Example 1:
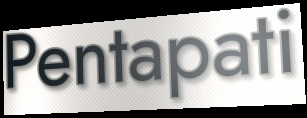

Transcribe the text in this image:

Pentapati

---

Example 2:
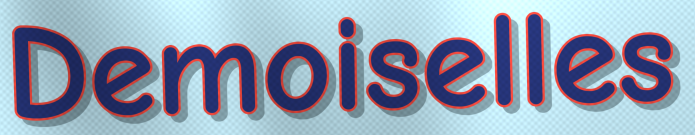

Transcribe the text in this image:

Demoiselles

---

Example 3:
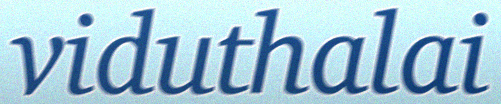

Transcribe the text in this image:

viduthalai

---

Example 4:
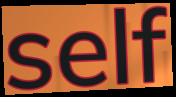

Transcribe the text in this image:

self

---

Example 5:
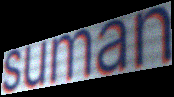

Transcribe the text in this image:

suman